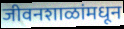
जीवनशाळांमधून